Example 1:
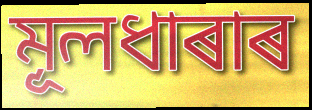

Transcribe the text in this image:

মূলধাৰাৰ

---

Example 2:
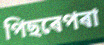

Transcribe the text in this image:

পিছৰেপৰা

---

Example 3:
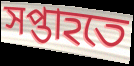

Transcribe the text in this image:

সপ্তাহতে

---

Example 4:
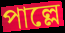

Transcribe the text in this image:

পাল্লে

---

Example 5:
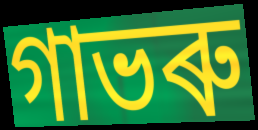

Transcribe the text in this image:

গাভৰু